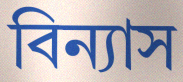
বিন্যাস